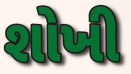
શોખી